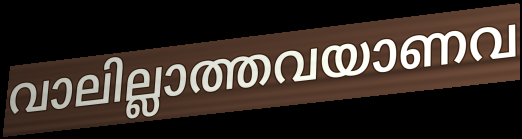
വാലില്ലാത്തവയാണവ